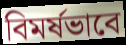
বিমর্ষভাবে